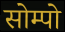
सोम्पो